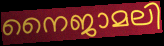
നൈജാമലി